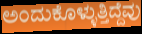
ಅಂದುಕೊಳ್ಳುತ್ತಿದ್ದೆವು